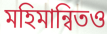
মহিমান্বিতও